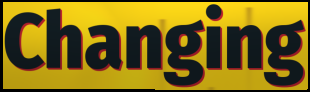
Changing